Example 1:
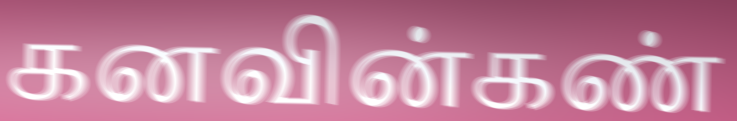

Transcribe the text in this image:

கனவின்கண்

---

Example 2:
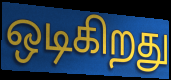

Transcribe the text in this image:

ஒடிகிறது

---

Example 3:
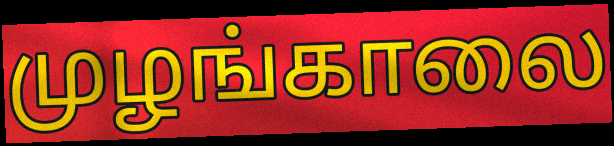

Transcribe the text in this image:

முழங்காலை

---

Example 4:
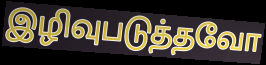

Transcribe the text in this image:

இழிவுபடுத்தவோ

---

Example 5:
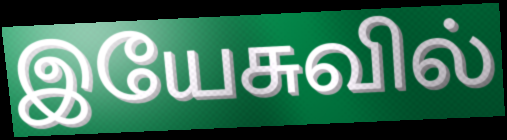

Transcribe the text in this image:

இயேசுவில்